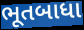
ભૂતબાધા